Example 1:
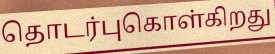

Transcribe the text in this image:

தொடர்புகொள்கிறது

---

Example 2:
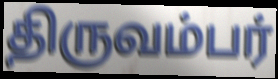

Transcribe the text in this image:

திருவம்பர்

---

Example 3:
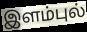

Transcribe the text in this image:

இளம்புல்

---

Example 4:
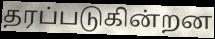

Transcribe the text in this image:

தரப்படுகின்றன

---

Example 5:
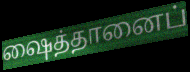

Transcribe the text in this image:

ஷைத்தானைப்